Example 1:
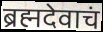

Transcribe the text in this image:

ब्रह्मदेवाचं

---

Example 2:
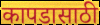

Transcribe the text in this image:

कापडासाठी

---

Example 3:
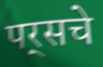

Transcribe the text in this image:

पर्सचे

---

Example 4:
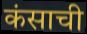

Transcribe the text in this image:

कंसाची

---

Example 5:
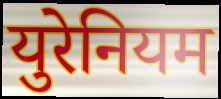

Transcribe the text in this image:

युरेनियम